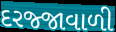
દરજ્જાવાળી